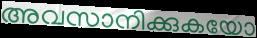
അവസാനിക്കുകയോ